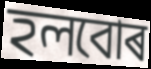
হলবোৰ